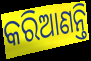
କରିଆଣନ୍ତି